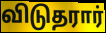
விடுதரார்